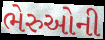
ભેરુઓની